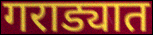
गराड्यात